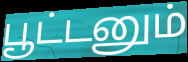
பூட்டனும்